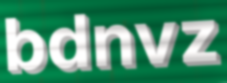
bdnvz